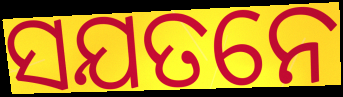
ସଯତନେ